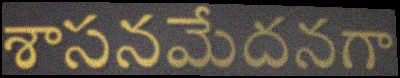
శాసనమేదనగా